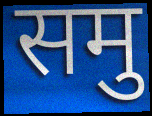
समु